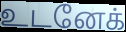
உடனேக்